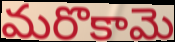
మరొకామె